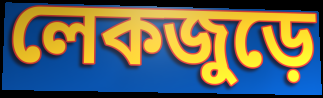
লেকজুড়ে